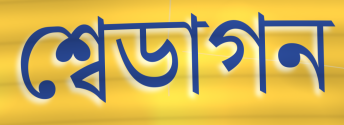
শ্বেডাগন